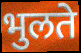
भुलते